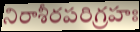
నిరాశీరపరిగ్రహః